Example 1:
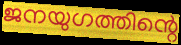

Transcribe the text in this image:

ജനയുഗത്തിന്റെ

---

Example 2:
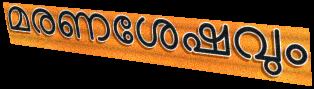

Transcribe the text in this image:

മരണശേഷവും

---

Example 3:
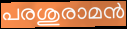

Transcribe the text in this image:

പരശുരാമൻ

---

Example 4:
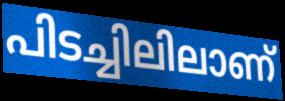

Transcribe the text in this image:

പിടച്ചിലിലാണ്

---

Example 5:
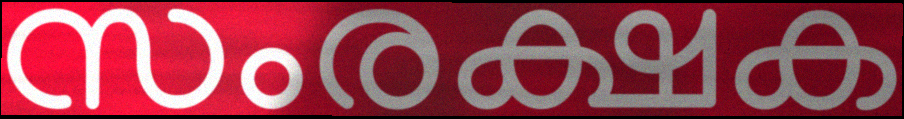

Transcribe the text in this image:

സംരക്ഷക